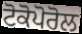
ਟੋਕੋਪੋਰੋਲ